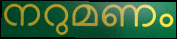
നറുമണം